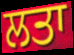
ਲਤਾ